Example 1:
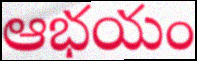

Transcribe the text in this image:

ఆభయం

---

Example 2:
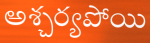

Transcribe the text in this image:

అశ్చర్యపోయి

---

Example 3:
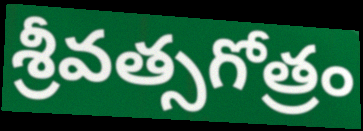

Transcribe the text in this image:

శ్రీవత్సగోత్రం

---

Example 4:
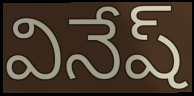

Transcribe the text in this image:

వినేష్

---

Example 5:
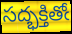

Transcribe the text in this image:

సద్భక్తితోఁ